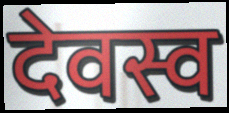
देवस्व